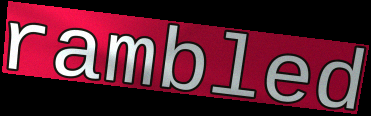
rambled